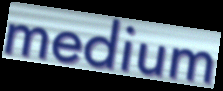
medium